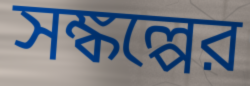
সঙ্কল্পের